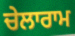
ਚੇਲਾਰਾਮ